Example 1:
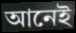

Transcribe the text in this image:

আনেই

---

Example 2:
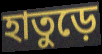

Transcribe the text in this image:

হাতুড়ে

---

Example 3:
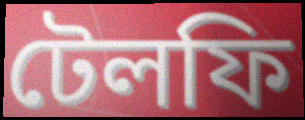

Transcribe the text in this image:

টেলফি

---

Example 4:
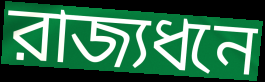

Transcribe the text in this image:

রাজ্যধনে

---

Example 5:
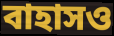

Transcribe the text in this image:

বাহাসও